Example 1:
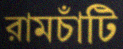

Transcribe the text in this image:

রামচাঁটি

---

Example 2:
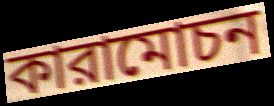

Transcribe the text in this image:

কারামোচন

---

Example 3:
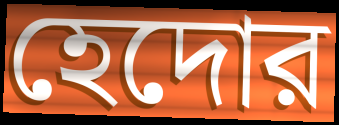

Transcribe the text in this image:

হেদোর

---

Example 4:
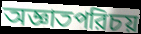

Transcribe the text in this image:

অজ্ঞাতপরিচয়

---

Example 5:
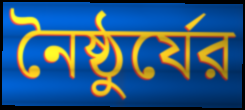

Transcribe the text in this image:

নৈষ্ঠুর্যের